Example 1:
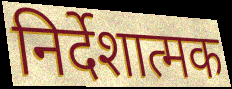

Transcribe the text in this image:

निर्देशात्मक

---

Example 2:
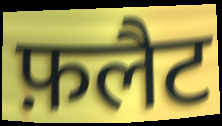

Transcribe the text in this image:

फ़लैट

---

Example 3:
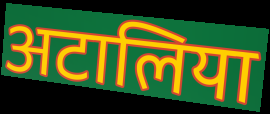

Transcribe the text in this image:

अटालिया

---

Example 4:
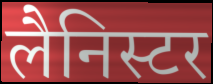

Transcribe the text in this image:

लैनिस्टर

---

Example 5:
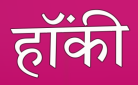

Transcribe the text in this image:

हॉंकी